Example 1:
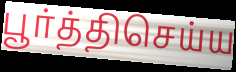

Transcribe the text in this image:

பூர்த்திசெய்ய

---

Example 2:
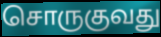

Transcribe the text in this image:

சொருகுவது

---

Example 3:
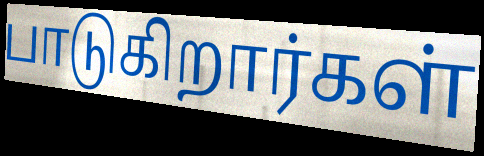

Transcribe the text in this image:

பாடுகிறார்கள்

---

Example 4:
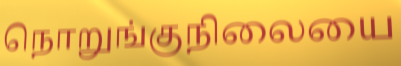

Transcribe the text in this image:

நொறுங்குநிலையை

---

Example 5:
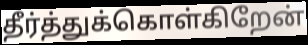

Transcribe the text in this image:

தீர்த்துக்கொள்கிறேன்